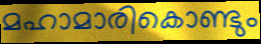
മഹാമാരികൊണ്ടും